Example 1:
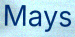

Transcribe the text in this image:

Mays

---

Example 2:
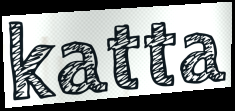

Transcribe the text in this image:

katta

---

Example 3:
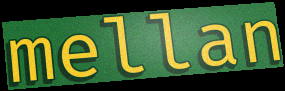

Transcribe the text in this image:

mellan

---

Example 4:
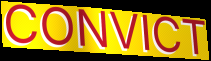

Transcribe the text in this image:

CONVICT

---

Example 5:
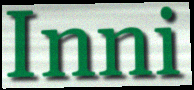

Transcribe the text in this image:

Inni